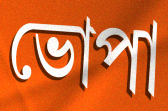
ভোপা